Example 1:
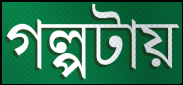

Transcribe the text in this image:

গল্পটায়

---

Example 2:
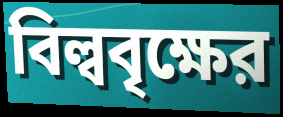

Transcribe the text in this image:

বিল্ববৃক্ষের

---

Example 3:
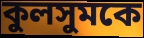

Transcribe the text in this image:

কুলসুমকে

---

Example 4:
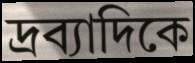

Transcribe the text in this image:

দ্রব্যাদিকে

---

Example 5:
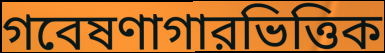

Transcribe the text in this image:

গবেষণাগারভিত্তিক